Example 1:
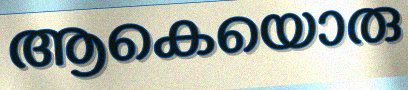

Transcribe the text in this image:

ആകെയൊരു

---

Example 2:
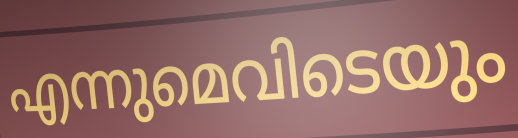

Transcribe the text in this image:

എന്നുമെവിടെയും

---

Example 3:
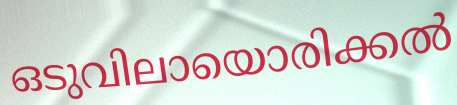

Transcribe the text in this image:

ഒടുവിലായൊരിക്കൽ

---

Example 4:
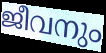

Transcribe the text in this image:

ജീവനും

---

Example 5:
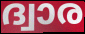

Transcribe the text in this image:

ദ്വാര